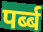
पर्ब्ब